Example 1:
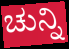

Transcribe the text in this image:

ಚುನ್ನಿ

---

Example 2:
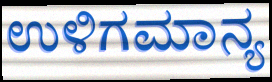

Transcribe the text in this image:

ಉಳಿಗಮಾನ್ಯ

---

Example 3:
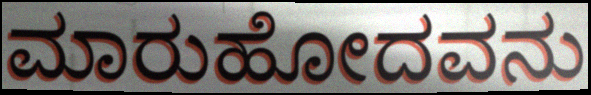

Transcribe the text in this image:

ಮಾರುಹೋದವನು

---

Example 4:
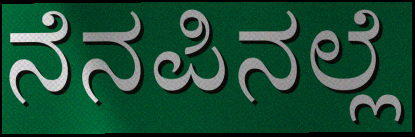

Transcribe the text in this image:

ನೆನಪಿನಲ್ಲೆ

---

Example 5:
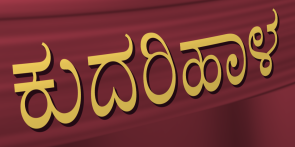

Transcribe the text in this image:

ಕುದರಿಹಾಳ